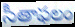
సీతాఫలం